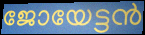
ജോയേട്ടൻ